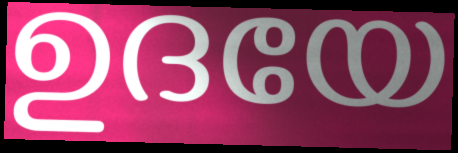
ഉദയേ